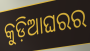
କୁଡ଼ିଆଘରର